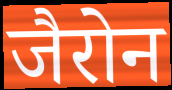
जैरोन